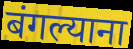
बंगल्याना